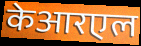
केआरएल